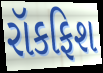
રૉકફિશ